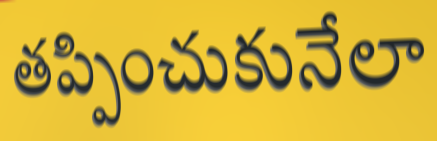
తప్పించుకునేలా